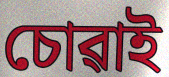
চোৱাই